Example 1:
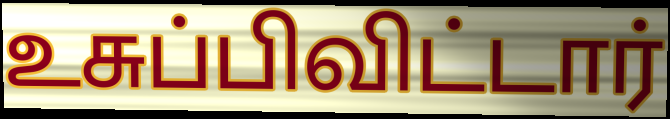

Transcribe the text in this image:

உசுப்பிவிட்டார்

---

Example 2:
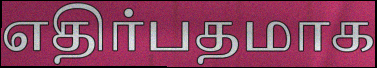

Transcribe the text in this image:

எதிர்பதமாக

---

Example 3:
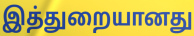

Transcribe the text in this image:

இத்துறையானது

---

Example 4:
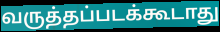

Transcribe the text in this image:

வருத்தப்படக்கூடாது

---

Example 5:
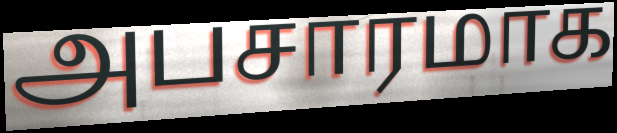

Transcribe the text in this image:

அபசாரமாக